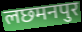
लछमनपुर